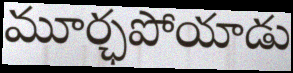
మూర్ఛపోయాడు